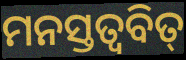
ମନସ୍ତତ୍ୱବିତ୍